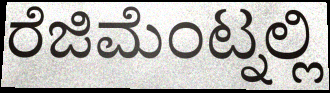
ರೆಜಿಮೆಂಟ್ನಲ್ಲಿ